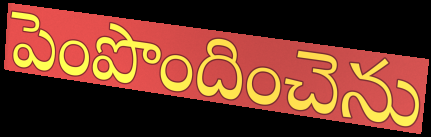
పెంపొందించెను